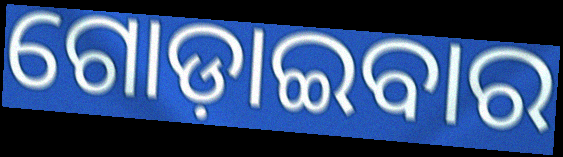
ଗୋଡ଼ାଇବାର